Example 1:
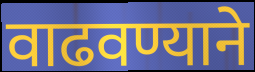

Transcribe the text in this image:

वाढवण्याने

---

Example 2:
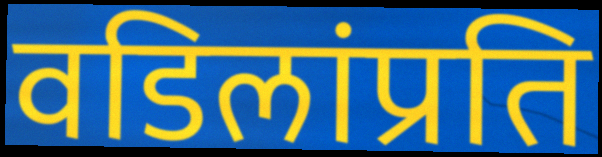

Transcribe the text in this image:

वडिलांप्रति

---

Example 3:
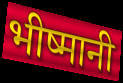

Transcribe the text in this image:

भीष्मानी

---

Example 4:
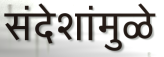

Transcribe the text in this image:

संदेशांमुळे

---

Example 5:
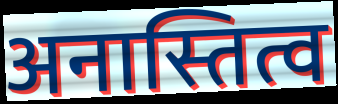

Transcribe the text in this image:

अनास्तित्व